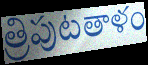
త్రిపుటతాళం